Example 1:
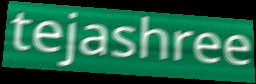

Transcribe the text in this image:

tejashree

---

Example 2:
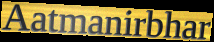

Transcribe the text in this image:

Aatmanirbhar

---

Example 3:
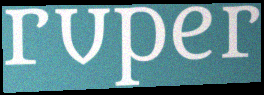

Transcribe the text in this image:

ruper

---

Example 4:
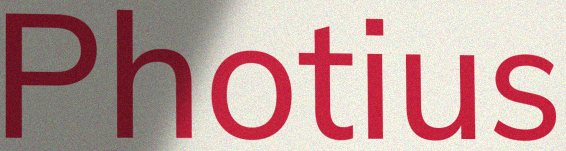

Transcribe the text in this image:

Photius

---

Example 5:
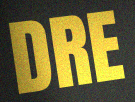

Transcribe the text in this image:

DRE